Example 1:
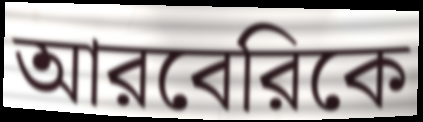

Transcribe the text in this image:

আরবেরিকে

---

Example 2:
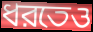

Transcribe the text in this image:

ধরতেও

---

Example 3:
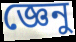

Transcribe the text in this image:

জ্ঞেনু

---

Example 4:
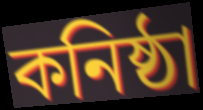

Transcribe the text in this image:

কনিষ্ঠা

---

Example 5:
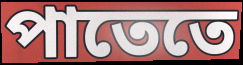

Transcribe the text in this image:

পাতেতে